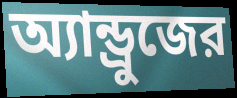
অ্যান্ড্রুজের